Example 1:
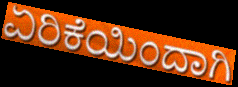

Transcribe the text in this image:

ಏರಿಕೆಯಿಂದಾಗಿ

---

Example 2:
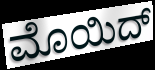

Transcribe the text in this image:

ಮೊಯಿದ್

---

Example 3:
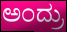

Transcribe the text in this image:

ಅಂದ್ರು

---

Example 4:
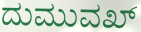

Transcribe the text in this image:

ದುಮುವಖ್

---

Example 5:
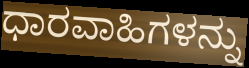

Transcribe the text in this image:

ಧಾರವಾಹಿಗಳನ್ನು